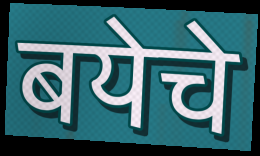
बयेचे